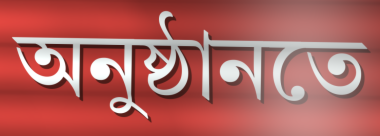
অনুষ্ঠানতে